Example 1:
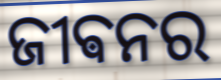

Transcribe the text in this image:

ଜୀଵନର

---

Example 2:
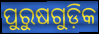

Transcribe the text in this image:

ପୁରୁଷଗୁଡ଼ିକ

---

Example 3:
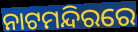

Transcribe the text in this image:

ନାଟମନ୍ଦିରରେ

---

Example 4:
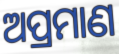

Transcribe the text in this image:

ଅପ୍ରମାଣ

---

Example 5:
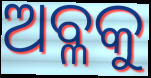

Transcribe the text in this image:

ଅବ୍ଳକୁ